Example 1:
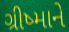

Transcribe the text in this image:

ગ્રીષ્માને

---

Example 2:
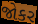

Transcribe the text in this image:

જોકર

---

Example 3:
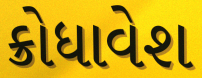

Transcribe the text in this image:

ક્રોધાવેશ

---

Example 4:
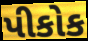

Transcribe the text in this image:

પીકોક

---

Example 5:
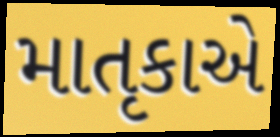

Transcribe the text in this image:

માતૃકાએ